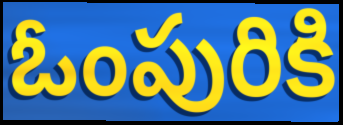
ఓంపురికి